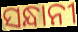
ସନ୍ଧାନୀ